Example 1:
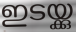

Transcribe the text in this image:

ഇടയ്ക്കു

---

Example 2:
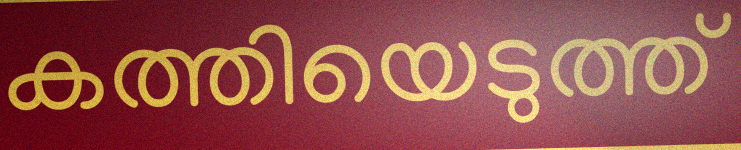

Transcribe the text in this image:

കത്തിയെടുത്ത്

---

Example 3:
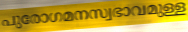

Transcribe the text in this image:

പുരോഗമനസ്വഭാവമുള്ള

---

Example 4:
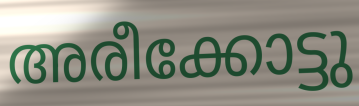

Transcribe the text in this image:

അരീക്കോട്ടു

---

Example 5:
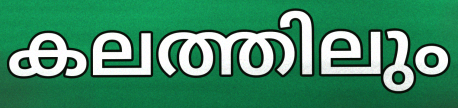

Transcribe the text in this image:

കലത്തിലും